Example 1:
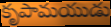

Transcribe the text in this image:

కృపామయుడు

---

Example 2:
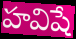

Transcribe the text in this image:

హవిషే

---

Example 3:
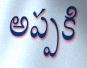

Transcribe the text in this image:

అప్పకి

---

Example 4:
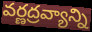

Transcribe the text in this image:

వర్ణద్రవ్యాన్ని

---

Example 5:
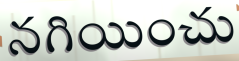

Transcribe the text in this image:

నగియించు